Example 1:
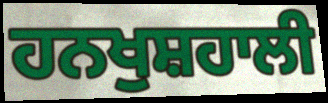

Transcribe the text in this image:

ਹਨਖੁਸ਼ਹਾਲੀ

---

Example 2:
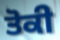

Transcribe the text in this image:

ਤੋਕੀ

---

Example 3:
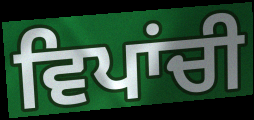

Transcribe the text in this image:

ਵਿਪਾਂਚੀ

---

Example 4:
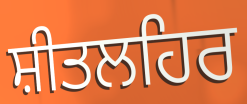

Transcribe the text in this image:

ਸ਼ੀਤਲਹਿਰ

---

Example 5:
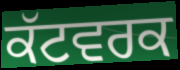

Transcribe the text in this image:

ਕੱਟਵਰਕ